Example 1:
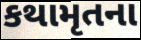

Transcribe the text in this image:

કથામૃતના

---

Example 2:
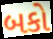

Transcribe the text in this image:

બકો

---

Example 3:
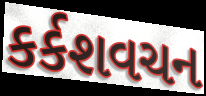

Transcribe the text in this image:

કર્કશવચન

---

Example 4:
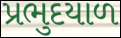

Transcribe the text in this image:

પ્રભુદયાળ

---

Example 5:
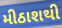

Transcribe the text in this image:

મીઠાશથી